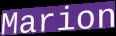
Marion